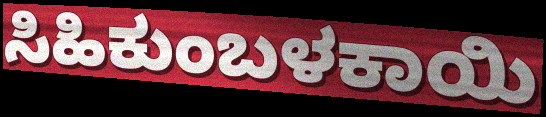
ಸಿಹಿಕುಂಬಳಕಾಯಿ